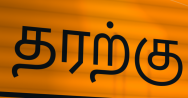
தரற்கு